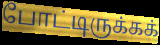
போட்டிருக்கக்